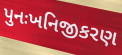
પુનઃખનિજીકરણ